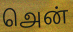
அென்